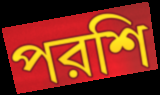
পরশি